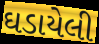
ઘડાયેલી